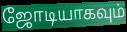
ஜோடியாகவும்